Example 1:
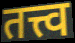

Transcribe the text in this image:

तत्त्व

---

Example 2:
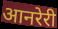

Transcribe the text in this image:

आनरेरी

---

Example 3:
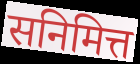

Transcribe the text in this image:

सनिमित्त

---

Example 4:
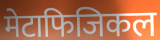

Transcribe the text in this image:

मेटाफिजिकल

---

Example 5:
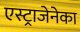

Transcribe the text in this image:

एस्ट्राजेनेका